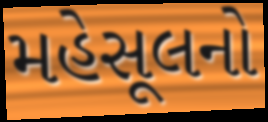
મહેસૂલનો